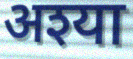
अश्या